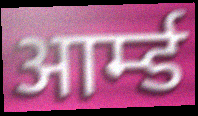
आर्म्ड